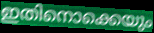
ഇതിനൊക്കെയും